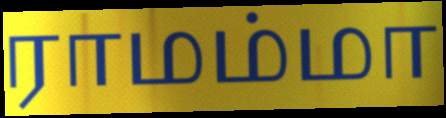
ராமம்மா